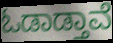
ಓಡಾಡ್ತಾವೆ